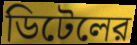
ডিটেলের